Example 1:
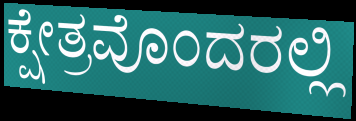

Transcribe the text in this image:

ಕ್ಷೇತ್ರವೊಂದರಲ್ಲಿ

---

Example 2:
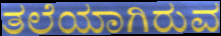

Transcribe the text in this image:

ತಲೆಯಾಗಿರುವ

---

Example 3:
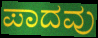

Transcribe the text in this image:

ಪಾದವು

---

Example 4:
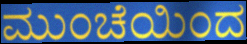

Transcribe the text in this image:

ಮುಂಚೆಯಿಂದ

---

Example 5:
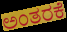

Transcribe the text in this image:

ಅಂತರಕೆ